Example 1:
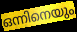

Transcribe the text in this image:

ഒന്നിനെയും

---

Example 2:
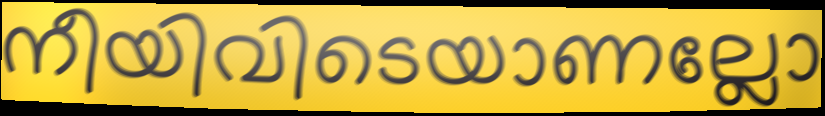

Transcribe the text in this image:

നീയിവിടെയാണല്ലോ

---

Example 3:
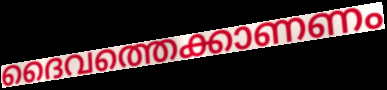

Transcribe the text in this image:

ദൈവത്തെക്കാണണം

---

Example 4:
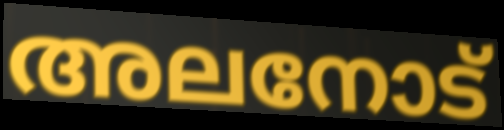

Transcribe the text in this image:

അലനോട്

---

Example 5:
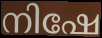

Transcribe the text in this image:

നിഷേ